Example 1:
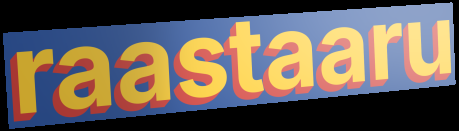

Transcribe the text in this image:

raastaaru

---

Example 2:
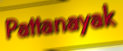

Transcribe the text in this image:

Pattanayak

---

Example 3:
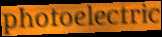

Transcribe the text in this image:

photoelectric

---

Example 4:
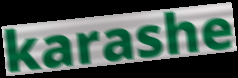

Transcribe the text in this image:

karashe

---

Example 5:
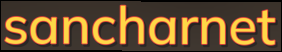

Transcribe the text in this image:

sancharnet